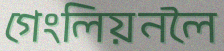
গেংলিয়নলৈ